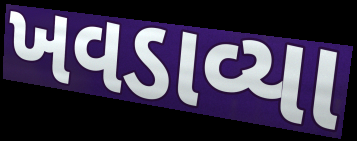
ખવડાવ્યા